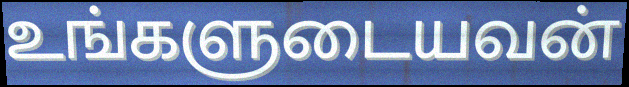
உங்களுடையவன்